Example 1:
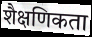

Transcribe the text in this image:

शैक्षणिकता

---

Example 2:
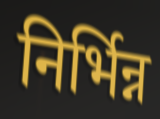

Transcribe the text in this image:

निर्भिन्न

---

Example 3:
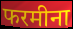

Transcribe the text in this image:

फरमीना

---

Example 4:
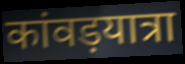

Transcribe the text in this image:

कांवड़यात्रा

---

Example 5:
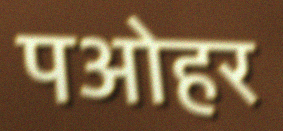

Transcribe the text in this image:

पओहर